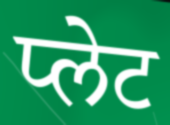
प्लेट